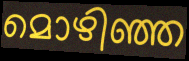
മൊഴിഞ്ഞ